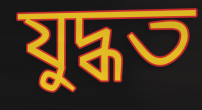
যুদ্ধত